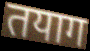
तयाग